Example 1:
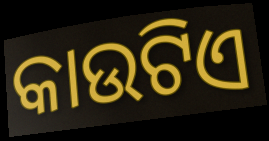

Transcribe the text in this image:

କାଉଟିଏ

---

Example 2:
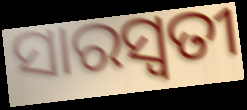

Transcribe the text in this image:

ସାରସ୍ୱତୀ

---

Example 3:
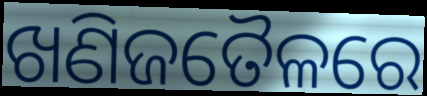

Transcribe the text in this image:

ଖଣିଜତୈଳରେ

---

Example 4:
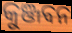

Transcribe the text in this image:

କୁଞ୍ଜବନ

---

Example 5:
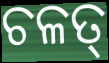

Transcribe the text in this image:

ଚଳତ୍